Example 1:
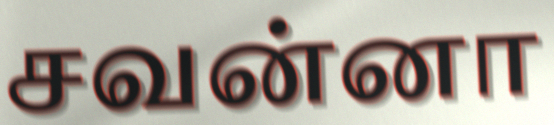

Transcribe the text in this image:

சவன்னா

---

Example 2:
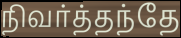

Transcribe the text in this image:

நிவர்த்தந்தே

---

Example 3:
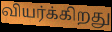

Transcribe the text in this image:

வியர்க்கிறது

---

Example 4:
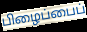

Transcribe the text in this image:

பிழைப்பைப்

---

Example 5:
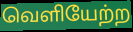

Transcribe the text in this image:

வெளியேற்ற